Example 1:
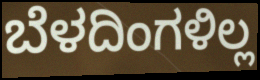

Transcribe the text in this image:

ಬೆಳದಿಂಗಳಿಲ್ಲ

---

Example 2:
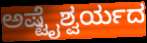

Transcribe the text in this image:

ಅಷ್ಟೈಶ್ವರ್ಯದ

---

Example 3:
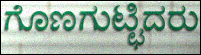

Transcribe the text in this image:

ಗೊಣಗುಟ್ಟಿದರು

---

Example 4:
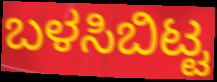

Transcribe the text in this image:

ಬಳಸಿಬಿಟ್ಟ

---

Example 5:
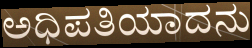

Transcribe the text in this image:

ಅಧಿಪತಿಯಾದನು